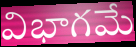
విభాగమే